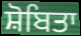
ਸ਼ੋਬਿਤਾ